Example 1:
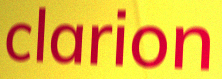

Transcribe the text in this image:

clarion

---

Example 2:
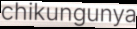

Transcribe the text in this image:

chikungunya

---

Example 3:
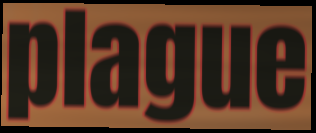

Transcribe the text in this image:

plague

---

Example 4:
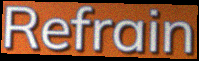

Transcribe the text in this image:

Refrain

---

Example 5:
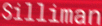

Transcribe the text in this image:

Silliman